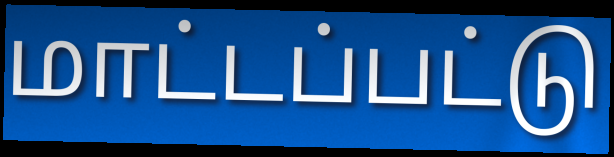
மாட்டப்பட்டு